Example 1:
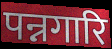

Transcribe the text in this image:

पन्नगारि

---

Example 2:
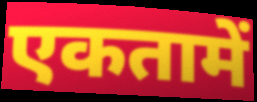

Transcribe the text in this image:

एकतामें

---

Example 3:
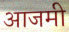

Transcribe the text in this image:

आजमी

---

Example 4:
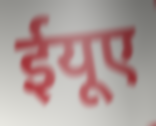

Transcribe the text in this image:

ईयूए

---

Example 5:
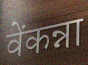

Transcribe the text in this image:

वेंकन्ना